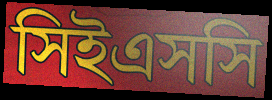
সিইএসসি